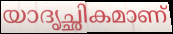
യാദൃച്ഛികമാണ്